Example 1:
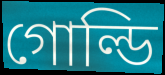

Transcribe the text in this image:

গোল্ডি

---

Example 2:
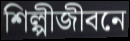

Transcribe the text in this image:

শিল্পীজীবনে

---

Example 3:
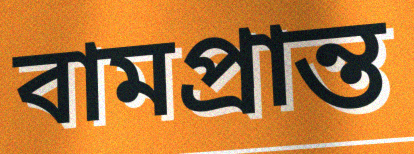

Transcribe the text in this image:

বামপ্রান্ত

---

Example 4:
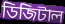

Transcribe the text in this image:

ডিজিটাল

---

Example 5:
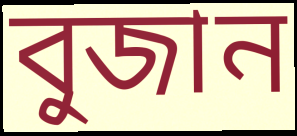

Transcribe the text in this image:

বুজান